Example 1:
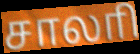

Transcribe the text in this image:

சாலரி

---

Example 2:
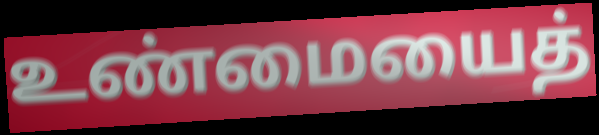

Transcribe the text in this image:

உண்மையைத்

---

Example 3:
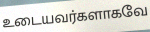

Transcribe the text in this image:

உடையவர்களாகவே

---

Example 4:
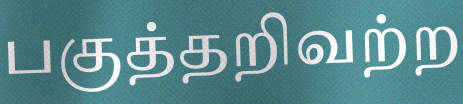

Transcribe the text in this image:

பகுத்தறிவற்ற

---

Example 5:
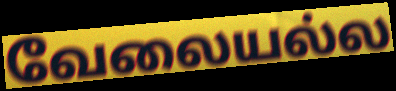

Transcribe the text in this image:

வேலையல்ல